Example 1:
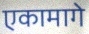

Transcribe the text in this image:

एकामागे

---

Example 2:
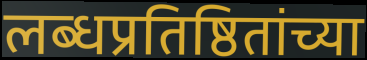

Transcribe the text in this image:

लब्धप्रतिष्ठितांच्या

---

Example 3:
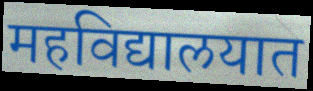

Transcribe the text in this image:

महविद्यालयात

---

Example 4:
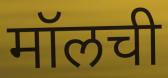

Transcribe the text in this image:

मॉलची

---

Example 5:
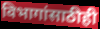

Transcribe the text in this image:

विभागांसाठीही